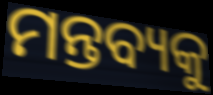
ମନ୍ତବ୍ୟକୁ